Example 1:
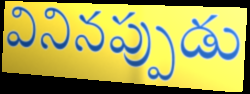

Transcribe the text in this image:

వినినప్పుడు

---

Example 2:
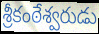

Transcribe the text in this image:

శ్రీకంఠేశ్వరుడు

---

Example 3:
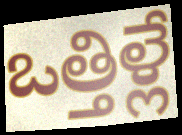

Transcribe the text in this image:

ఒత్తిళ్లే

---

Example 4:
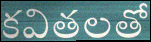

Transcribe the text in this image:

కవితలతో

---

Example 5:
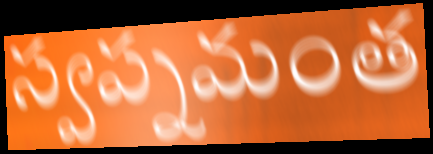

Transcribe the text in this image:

స్వప్నమంత